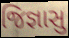
જિજ્ઞાસુ